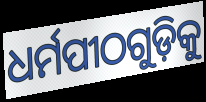
ଧର୍ମପୀଠଗୁଡ଼ିକୁ